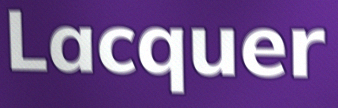
Lacquer